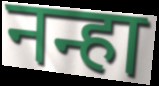
नन्हा